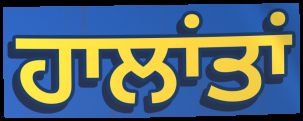
ਹਾਲਾਂਤਾਂ